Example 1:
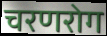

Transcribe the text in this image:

चरणरोग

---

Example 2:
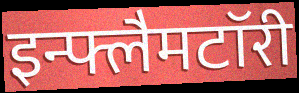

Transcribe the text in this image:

इन्फ्लैमटॉरी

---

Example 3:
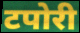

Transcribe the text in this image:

टपोरी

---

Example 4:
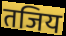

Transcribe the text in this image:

तजिय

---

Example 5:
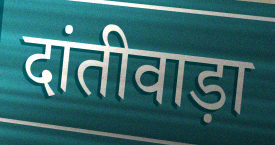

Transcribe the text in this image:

दांतीवाड़ा